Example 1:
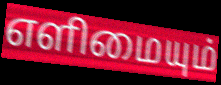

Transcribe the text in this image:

எளிமையும்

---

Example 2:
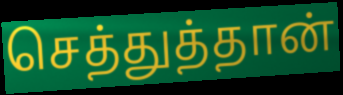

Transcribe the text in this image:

செத்துத்தான்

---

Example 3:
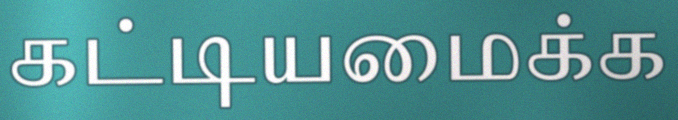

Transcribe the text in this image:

கட்டியமைக்க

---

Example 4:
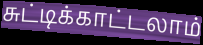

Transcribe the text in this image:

சுட்டிக்காட்டலாம்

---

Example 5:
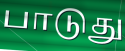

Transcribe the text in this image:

பாடுது